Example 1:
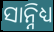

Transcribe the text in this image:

ସାନ୍ନିଧ୍ୟ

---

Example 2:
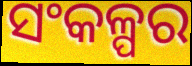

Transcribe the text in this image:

ସଂକଳ୍ପର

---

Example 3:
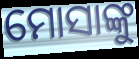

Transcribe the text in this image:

ମୋସାଙ୍କୁ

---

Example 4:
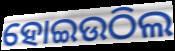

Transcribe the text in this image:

ହୋଇଉଠିଲ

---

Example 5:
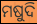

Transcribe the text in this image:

ମଷୁଦି